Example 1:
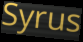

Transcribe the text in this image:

Syrus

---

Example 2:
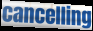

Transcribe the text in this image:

cancelling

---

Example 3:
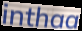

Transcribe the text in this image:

inthaa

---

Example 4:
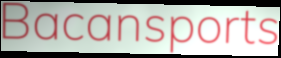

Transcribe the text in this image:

Bacansports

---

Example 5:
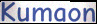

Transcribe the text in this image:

Kumaon